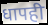
धापही